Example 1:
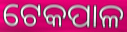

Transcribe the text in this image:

ଟେକପାଳ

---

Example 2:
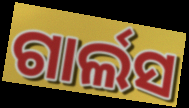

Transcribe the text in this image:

ଗାର୍ଲସ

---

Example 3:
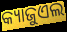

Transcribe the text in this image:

କ୍ୟାଜୁଏଲ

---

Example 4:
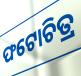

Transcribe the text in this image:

ଫଟୋଚିତ୍ର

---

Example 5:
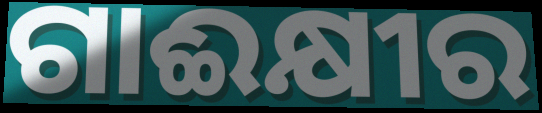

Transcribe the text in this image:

ଗାଈକ୍ଷୀର